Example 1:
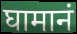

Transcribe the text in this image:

घामानं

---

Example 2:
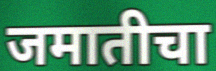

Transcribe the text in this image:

जमातीचा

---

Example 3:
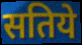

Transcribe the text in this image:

सतिये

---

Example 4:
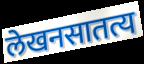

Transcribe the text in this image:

लेखनसातत्य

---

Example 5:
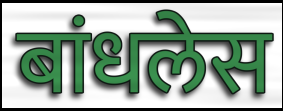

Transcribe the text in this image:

बांधलेस